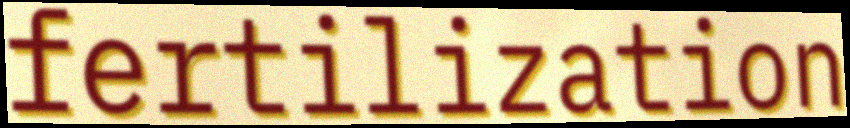
fertilization